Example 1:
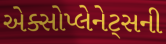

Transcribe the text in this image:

એક્સોપ્લેનેટ્સની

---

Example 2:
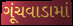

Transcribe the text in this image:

ગૂંચવાડામાં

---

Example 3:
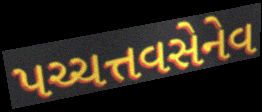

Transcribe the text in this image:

પચ્ચત્તવસેનેવ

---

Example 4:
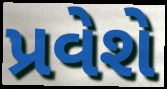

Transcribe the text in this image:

પ્રવેશે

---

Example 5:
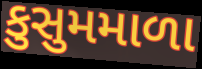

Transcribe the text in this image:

કુસુમમાળા